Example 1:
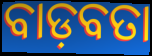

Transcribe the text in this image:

ବାଡ଼ବତା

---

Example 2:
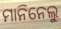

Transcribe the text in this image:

ମାନିନେଲୁ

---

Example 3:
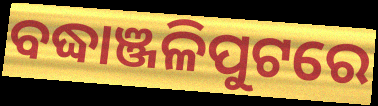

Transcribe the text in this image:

ବଦ୍ଧାଞ୍ଜଳିପୁଟରେ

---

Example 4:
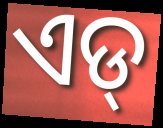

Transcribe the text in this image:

ଏଡ୍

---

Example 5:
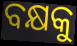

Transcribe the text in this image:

ବକ୍ଷକୁ